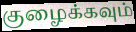
குழைக்கவும்